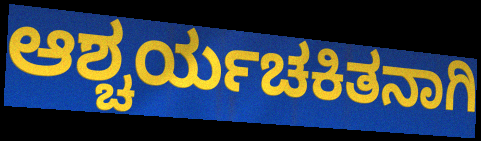
ಆಶ್ಚರ್ಯಚಕಿತನಾಗಿ